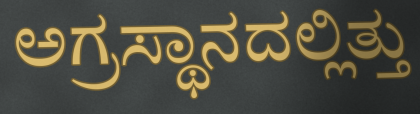
ಅಗ್ರಸ್ಥಾನದಲ್ಲಿತ್ತು